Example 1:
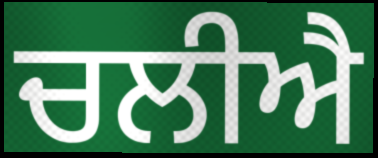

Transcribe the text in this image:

ਚਲੀਐ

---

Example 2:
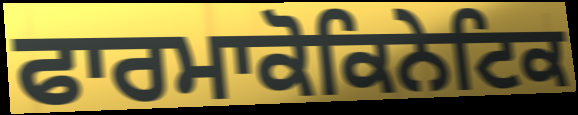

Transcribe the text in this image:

ਫਾਰਮਾਕੋਕਿਨੇਟਿਕ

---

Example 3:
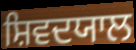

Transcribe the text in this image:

ਸ਼ਿਵਦਯਾਲ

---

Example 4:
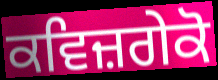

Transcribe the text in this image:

ਕਵਿਜ਼ਗੇਕੋ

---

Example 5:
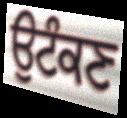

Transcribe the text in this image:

ਉਟੰਕਣ